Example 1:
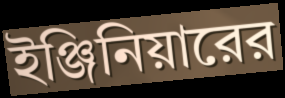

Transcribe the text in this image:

ইঞ্জিনিয়ারের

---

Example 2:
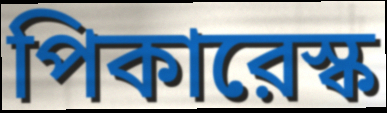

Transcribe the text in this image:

পিকারেস্ক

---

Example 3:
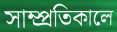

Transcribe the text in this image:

সাম্প্রতিকালে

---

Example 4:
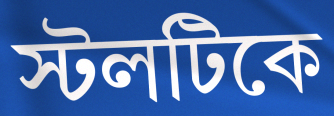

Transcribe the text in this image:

স্টলটিকে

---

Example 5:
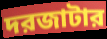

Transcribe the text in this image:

দরজাটার